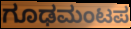
ಗೂಢಮಂಟಪ